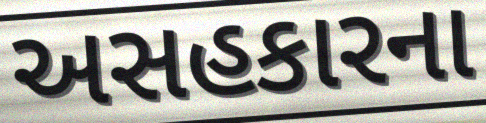
અસહકારના